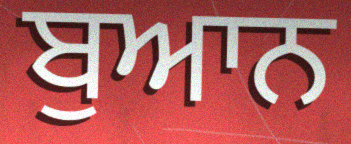
ਬੁਆਨ